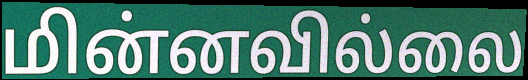
மின்னவில்லை